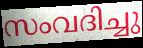
സംവദിച്ചു